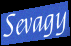
Sevagy